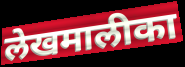
लेखमालीका